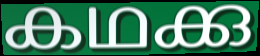
കഥക്കു